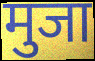
मुजा